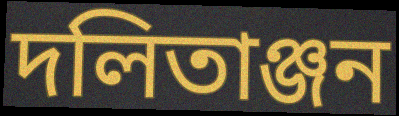
দলিতাঞ্জন